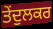
ਤੇਂਦੁਲਕਰ